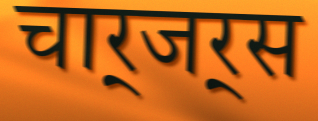
चार्जर्स